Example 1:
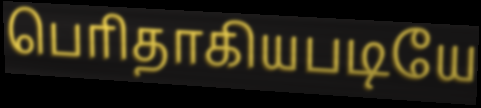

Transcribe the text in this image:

பெரிதாகியபடியே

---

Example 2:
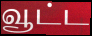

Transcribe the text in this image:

வூட்ட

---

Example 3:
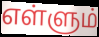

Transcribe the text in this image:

எள்ளும்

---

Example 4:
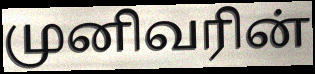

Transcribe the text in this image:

முனிவரின்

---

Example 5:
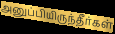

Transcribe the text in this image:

அனுப்பியிருந்தீர்கள்